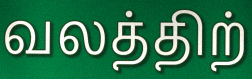
வலத்திற்